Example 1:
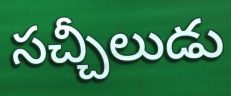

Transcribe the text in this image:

సచ్చీలుడు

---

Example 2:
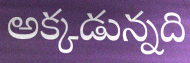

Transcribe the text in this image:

అక్కడున్నది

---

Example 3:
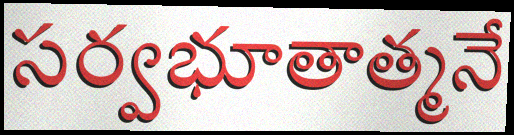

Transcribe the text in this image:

సర్వభూతాత్మనే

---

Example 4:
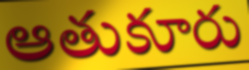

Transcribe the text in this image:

ఆతుకూరు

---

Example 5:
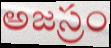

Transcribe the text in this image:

అజస్రం